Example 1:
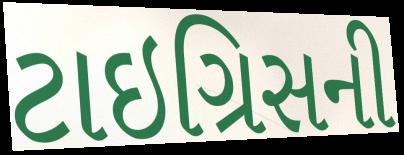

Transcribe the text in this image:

ટાઇગ્રિસની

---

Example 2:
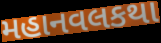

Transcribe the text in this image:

મહાનવલકથા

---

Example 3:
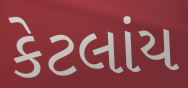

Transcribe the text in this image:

કેટલાંય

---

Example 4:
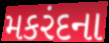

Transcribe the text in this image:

મકરંદના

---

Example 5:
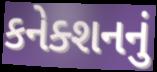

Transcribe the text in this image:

કનેક્શનનું